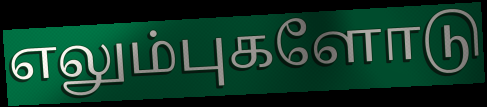
எலும்புகளோடு